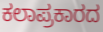
ಕಲಾಪ್ರಕಾರದ